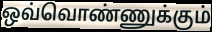
ஒவ்வொண்ணுக்கும்